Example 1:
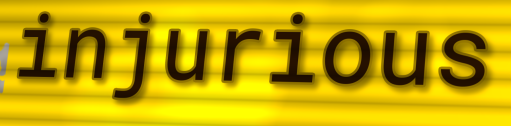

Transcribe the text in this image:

injurious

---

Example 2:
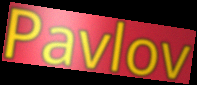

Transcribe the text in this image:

Pavlov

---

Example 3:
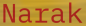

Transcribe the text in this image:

Narak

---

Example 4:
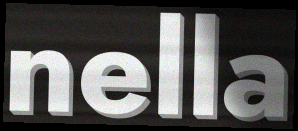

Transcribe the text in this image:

nella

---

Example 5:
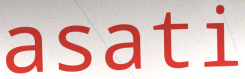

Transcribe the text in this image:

asati